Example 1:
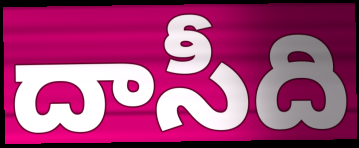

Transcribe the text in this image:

దాసీది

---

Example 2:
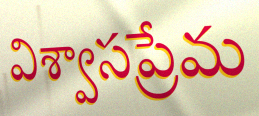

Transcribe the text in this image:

విశ్వాసప్రేమ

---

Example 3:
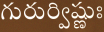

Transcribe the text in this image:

గురుర్విష్ణుః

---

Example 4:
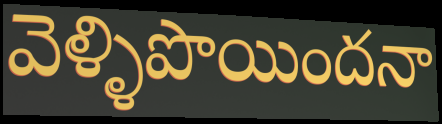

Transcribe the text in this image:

వెళ్ళిపొయిందనా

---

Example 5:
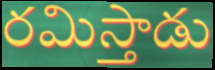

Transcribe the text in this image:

రమిస్తాడు